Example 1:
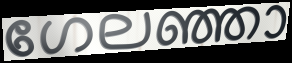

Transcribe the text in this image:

ഗേലഞ്ഞാ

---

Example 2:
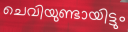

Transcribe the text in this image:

ചെവിയുണ്ടായിട്ടും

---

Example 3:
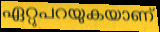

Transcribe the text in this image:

ഏറ്റുപറയുകയാണ്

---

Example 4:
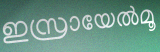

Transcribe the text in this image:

ഇസ്രായേൽമൂ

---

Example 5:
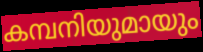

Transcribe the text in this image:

കമ്പനിയുമായും